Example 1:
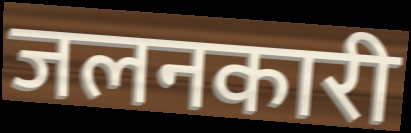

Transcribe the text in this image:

जलनकारी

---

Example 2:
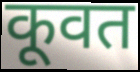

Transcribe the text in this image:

कूवत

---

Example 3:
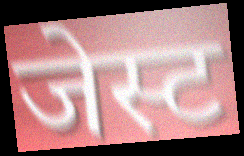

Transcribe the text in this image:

जेस्‍ट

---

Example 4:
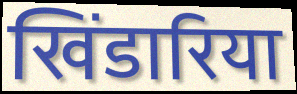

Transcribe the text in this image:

खिंडारिया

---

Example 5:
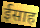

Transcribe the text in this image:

ईसाह